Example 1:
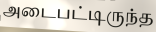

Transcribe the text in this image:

அடைபட்டிருந்த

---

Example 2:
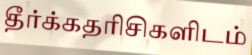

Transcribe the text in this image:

தீர்க்கதரிசிகளிடம்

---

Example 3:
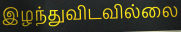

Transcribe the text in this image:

இழந்துவிடவில்லை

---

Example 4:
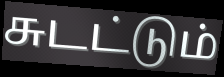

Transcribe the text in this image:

சுடட்டும்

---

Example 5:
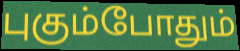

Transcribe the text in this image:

புகும்போதும்